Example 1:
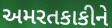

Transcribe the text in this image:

અમરતકાકીને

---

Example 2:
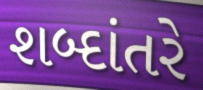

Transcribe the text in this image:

શબ્દાંતરે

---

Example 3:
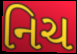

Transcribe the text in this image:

નિચ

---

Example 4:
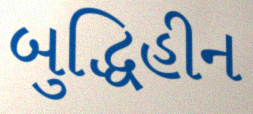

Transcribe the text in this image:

બુદ્ધિહીન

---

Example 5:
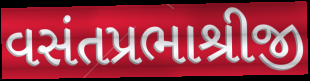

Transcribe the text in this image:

વસંતપ્રભાશ્રીજી